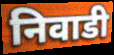
निवाडी